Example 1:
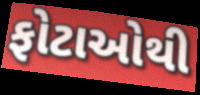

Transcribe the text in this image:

ફોટાઓથી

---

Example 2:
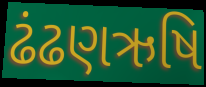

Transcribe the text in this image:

ઢંઢણઋષિ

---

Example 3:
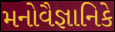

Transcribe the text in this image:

મનોવૈજ્ઞાનિકે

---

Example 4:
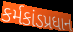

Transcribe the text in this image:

કર્મકાંડપ્રધાન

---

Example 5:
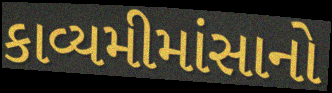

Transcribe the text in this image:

કાવ્યમીમાંસાનો